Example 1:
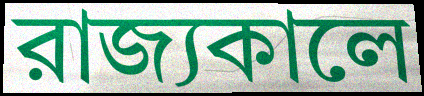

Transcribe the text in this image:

রাজ্যকালে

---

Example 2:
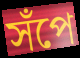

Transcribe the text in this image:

সঁপে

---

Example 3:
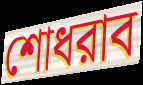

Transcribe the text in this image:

শোধরাব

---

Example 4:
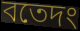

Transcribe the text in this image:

বতেদং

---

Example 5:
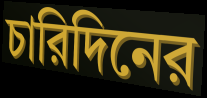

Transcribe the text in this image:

চারিদিনের